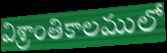
విశ్రాంతికాలములో